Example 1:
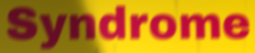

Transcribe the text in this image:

Syndrome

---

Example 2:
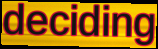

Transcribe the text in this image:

deciding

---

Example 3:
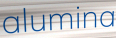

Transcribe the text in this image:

alumina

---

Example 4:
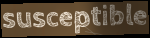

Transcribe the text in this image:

susceptible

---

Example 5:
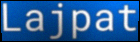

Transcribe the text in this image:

Lajpat